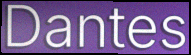
Dantes